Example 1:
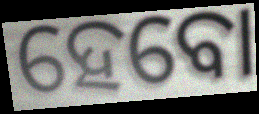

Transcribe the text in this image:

ହେବୋ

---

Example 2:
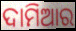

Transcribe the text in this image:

ଦାମିଆର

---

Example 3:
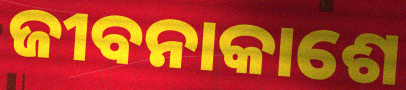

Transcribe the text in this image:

ଜୀବନାକାଶେ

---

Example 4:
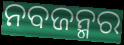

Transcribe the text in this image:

ନବଜନ୍ମର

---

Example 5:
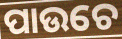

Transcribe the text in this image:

ପାଉଚେ